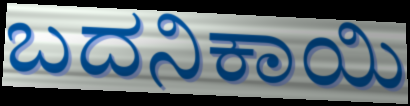
ಬದನಿಕಾಯಿ